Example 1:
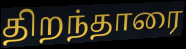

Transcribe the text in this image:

திறந்தாரை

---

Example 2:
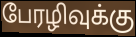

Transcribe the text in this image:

பேரழிவுக்கு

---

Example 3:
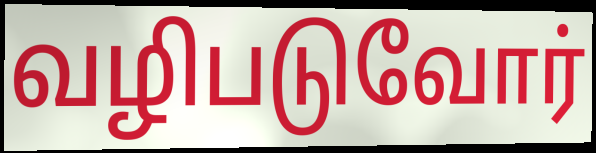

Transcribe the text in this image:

வழிபடுவோர்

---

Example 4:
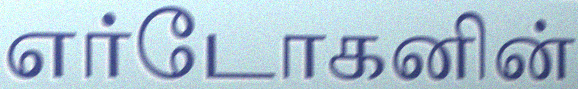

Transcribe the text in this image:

எர்டோகனின்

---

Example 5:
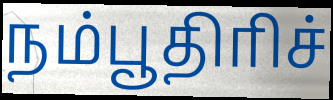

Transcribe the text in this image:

நம்பூதிரிச்